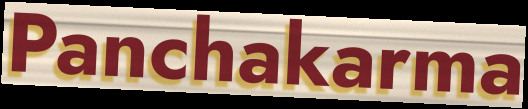
Panchakarma